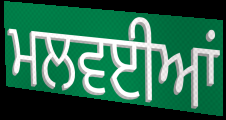
ਮਲਵਈਆਂ